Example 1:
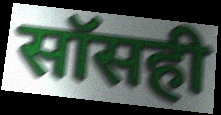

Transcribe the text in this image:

सॉसही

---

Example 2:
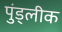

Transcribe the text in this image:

पुंड्लीक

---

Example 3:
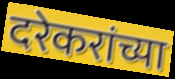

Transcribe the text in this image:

दरेकरांच्या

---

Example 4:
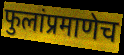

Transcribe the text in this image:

फुलांप्रमाणेच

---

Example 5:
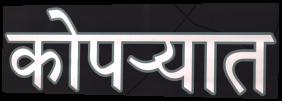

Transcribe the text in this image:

कोपऱ्यात